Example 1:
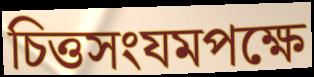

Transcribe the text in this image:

চিত্তসংযমপক্ষে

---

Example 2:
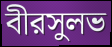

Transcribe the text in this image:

বীরসুলভ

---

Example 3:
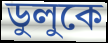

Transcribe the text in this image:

ডুলুকে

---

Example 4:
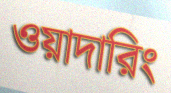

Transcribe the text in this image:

ওয়াদারিং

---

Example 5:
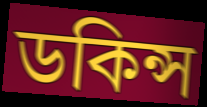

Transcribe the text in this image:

ডকিন্স